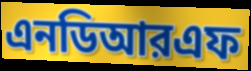
এনডিআরএফ